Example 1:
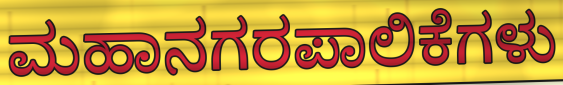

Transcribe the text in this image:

ಮಹಾನಗರಪಾಲಿಕೆಗಳು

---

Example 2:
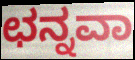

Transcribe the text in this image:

ಛನ್ನವಾ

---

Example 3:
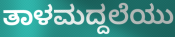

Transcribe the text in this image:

ತಾಳಮದ್ದಲೆಯು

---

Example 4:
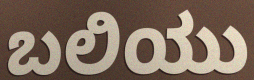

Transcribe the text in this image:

ಬಲಿಯು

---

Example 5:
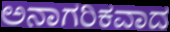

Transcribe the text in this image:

ಅನಾಗರಿಕವಾದ